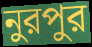
নুরপুর